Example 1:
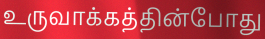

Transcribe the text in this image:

உருவாக்கத்தின்போது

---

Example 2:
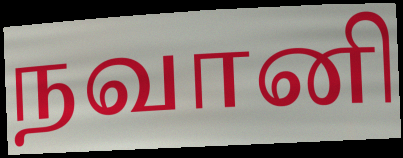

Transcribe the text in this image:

நவானி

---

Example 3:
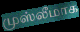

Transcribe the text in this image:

முஸ்லீமாக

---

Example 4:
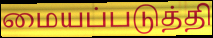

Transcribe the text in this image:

மையப்படுத்தி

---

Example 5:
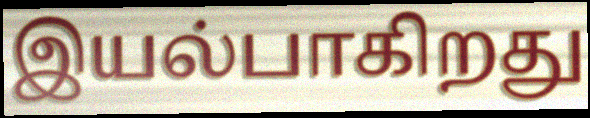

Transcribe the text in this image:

இயல்பாகிறது